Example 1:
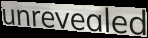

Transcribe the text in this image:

unrevealed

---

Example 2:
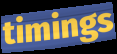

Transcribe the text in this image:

timings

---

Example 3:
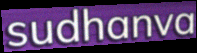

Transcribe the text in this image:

sudhanva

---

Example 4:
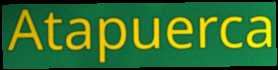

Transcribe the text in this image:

Atapuerca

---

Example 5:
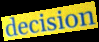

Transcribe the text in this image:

decision